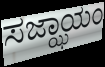
ಸಜ್ಝಾಯಂ